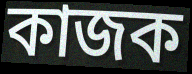
কাজক